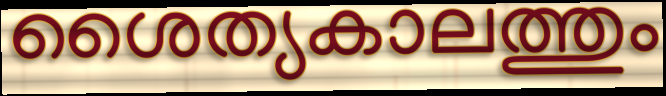
ശൈത്യകാലത്തും